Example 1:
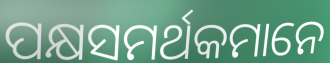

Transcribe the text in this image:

ପକ୍ଷସମର୍ଥକମାନେ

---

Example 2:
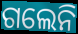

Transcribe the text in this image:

ଗଲେନି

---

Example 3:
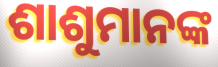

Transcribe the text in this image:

ଶାଶୁମାନଙ୍କ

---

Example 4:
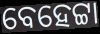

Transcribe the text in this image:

ବେହେଟ୍ଟା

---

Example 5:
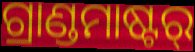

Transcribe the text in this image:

ଗ୍ରାଣ୍ଡମାଷ୍ଟର୍